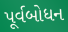
પૂર્વબોધન